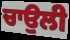
ਚਾਉਲੀ